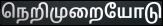
நெறிமுறையோடு